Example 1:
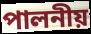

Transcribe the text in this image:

পালনীয়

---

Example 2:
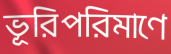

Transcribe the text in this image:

ভূরিপরিমাণে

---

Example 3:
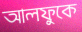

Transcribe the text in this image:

আলফুকে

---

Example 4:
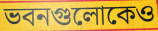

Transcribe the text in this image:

ভবনগুলোকেও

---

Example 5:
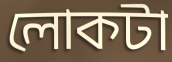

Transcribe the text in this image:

লোকটা